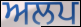
ਅਲਪ